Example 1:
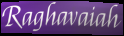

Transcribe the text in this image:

Raghavaiah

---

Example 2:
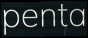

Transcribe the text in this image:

penta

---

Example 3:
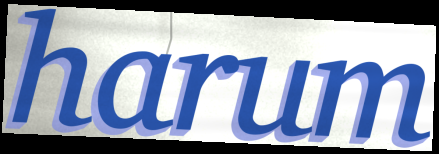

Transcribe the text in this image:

harum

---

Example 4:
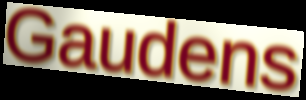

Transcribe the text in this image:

Gaudens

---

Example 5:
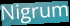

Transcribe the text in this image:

Nigrum